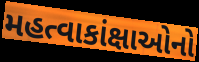
મહત્વાકાંક્ષાઓનો